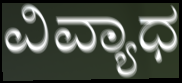
ವಿವ್ಯಾಧ